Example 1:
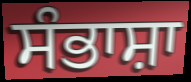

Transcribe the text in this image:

ਸੰਭਾਸ਼ਾ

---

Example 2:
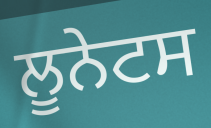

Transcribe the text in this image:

ਲੂਨੇਟਸ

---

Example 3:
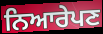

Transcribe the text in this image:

ਨਿਆਰੇਪਣ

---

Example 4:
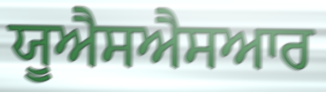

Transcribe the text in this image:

ਯੂਐਸਐਸਆਰ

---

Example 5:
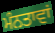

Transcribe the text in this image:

ਮੰਨਤਾਵਾਂ